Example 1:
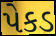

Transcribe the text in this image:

પેકડ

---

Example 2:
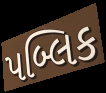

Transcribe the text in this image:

પબ્લિક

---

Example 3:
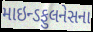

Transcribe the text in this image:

માઇન્ડફુલનેસના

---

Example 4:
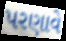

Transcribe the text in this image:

પરણાવે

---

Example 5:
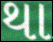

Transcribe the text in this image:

થા